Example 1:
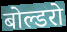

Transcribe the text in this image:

बोल्डरो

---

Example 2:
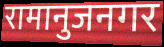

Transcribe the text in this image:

रामानुजनगर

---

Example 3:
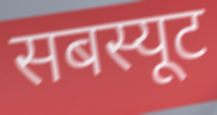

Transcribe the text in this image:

सबस्यूट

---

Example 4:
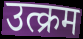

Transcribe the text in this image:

उत्क्रम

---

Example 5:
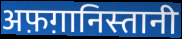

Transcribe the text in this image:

अफ़ग़ानिस्तानी